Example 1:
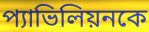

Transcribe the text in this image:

প্যাভিলিয়নকে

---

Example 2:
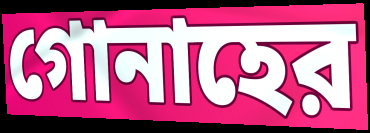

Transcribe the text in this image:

গোনাহের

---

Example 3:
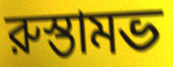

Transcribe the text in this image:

রুস্তামভ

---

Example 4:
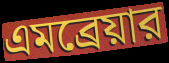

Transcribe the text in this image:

এমব্রেয়ার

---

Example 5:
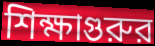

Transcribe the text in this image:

শিক্ষাগুরুর